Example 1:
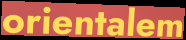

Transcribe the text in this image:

orientalem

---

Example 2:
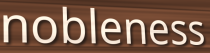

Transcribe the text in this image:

nobleness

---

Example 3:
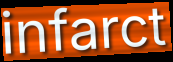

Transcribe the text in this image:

infarct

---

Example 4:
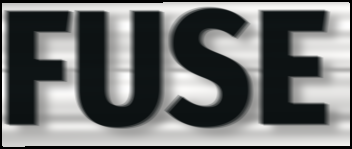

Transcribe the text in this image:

FUSE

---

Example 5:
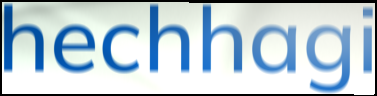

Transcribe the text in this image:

hechhagi